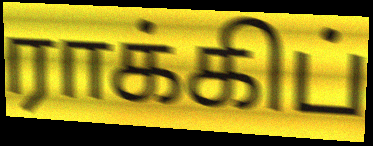
ராக்கிப்